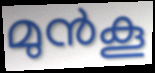
മുൻകൂ